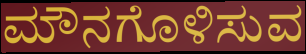
ಮೌನಗೊಳಿಸುವ